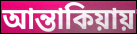
আন্তাকিয়ায়